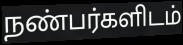
நண்பர்களிடம்